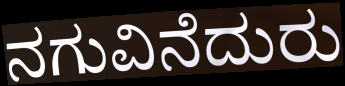
ನಗುವಿನೆದುರು